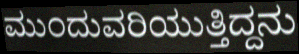
ಮುಂದುವರಿಯುತ್ತಿದ್ದನು